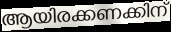
ആയിരക്കണക്കിന്